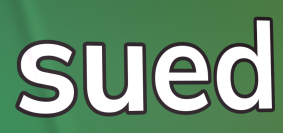
sued